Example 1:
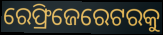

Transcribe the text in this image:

ରେଫ୍ରିଜେରେଟରକୁ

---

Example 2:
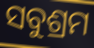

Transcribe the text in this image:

ସବୁଶ୍ରମ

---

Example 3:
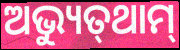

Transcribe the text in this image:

ଅଭ୍ୟୁତ୍‌ଥାମ୍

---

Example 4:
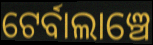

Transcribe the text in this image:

ଟେର୍ବାଲାଞ୍ଚେ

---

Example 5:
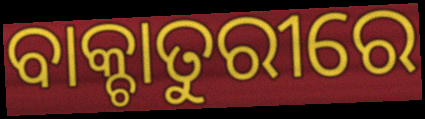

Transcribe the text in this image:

ବାକ୍ଚାତୁରୀରେ